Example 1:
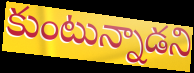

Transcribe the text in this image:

కుంటున్నాడని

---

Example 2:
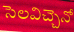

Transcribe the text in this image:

సెలవిచ్చెనో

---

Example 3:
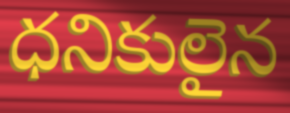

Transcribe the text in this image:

ధనికులైన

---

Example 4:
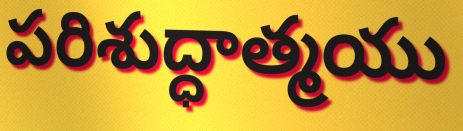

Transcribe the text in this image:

పరిశుద్ధాత్మయు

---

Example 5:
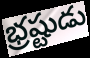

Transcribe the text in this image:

భ్రష్టుడు